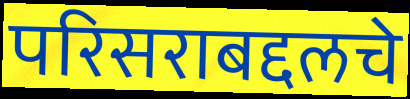
परिसराबद्दलचे